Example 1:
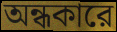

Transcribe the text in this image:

অন্ধকারে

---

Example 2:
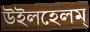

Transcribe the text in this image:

উইলহেলম্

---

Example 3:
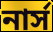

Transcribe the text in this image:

নার্স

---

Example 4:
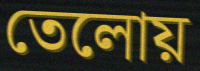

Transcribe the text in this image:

তেলোয়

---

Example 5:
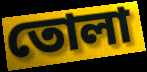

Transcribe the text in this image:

তোলা